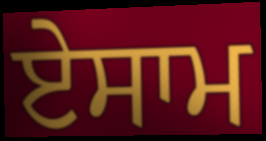
ਏਸਾਮ